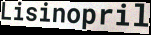
Lisinopril